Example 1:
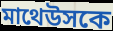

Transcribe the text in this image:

মাথেউসকে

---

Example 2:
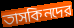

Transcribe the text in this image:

তাসকিনদের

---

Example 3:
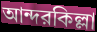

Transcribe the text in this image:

আন্দরকিল্লা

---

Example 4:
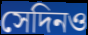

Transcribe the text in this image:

সেদিনও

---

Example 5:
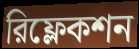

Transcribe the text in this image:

রিফ্লেকশন